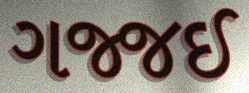
ગજ્જઈ